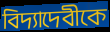
বিদ্যাদেবীকে